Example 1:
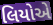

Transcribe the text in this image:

લિયોએ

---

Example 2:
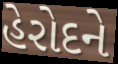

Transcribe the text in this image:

હેરોદને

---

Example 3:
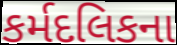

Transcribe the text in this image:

કર્મદલિકના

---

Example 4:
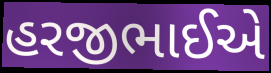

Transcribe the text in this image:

હરજીભાઈએ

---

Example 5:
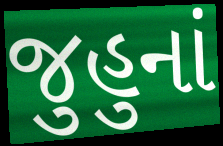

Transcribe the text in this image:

જુહુનાં